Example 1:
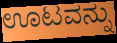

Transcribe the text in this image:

ಊಟವನ್ನು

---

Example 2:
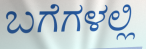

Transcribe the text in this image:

ಬಗೆಗಳಲ್ಲಿ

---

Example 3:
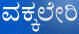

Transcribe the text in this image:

ವಕ್ಕಲೇರಿ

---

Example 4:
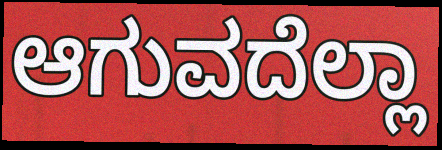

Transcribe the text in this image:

ಆಗುವದೆಲ್ಲಾ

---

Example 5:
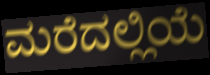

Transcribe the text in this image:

ಮರೆದಲ್ಲಿಯೆ